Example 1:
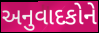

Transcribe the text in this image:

અનુવાદકોને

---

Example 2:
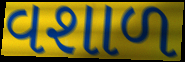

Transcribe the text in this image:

વશાળ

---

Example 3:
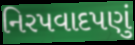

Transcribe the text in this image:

નિરપવાદપણું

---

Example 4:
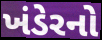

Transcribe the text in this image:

ખંડેરનો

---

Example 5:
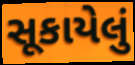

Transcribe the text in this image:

સૂકાયેલું